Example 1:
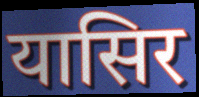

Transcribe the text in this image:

यासिर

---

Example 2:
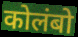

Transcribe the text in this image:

कोलंबो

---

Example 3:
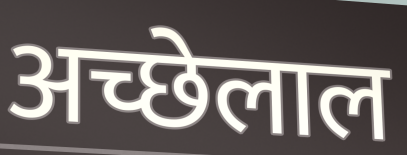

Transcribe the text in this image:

अच्छेलाल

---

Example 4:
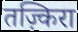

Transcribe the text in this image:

तज़्किरा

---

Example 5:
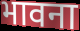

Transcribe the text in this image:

भावना